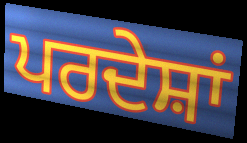
ਪਰਦੇਸ਼ਾਂ